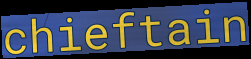
chieftain